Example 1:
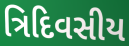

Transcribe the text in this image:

ત્રિદિવસીય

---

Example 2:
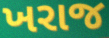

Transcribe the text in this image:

ખરાજ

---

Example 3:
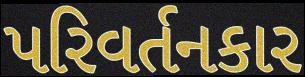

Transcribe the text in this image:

પરિવર્તનકાર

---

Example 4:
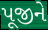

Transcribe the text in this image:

પૂજીને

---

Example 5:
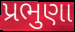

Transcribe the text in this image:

પ્રભુણા